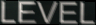
LEVEL